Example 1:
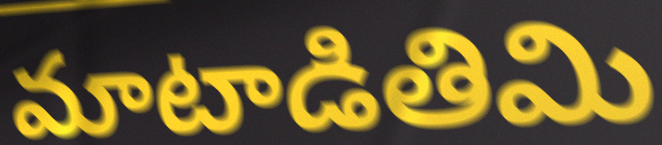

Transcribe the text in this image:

మాటాడితిమి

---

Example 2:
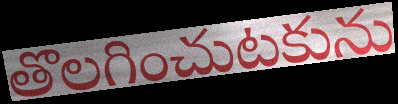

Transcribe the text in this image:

తొలగించుటకును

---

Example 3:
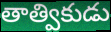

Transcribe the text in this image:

తాత్వికుడు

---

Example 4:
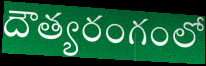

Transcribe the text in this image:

దౌత్యరంగంలో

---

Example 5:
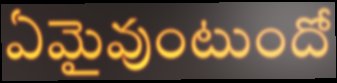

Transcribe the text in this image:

ఏమైవుంటుందో